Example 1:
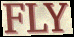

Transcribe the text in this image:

FLY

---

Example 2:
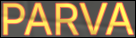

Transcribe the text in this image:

PARVA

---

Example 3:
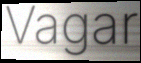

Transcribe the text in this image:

Vagar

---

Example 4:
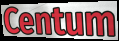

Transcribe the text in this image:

Centum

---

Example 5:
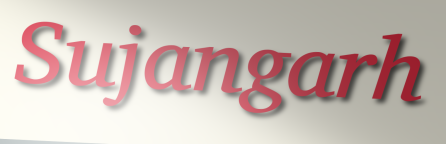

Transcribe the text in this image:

Sujangarh